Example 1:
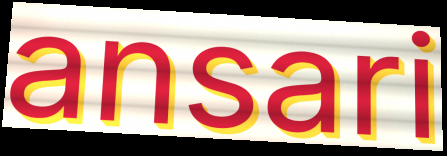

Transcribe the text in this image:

ansari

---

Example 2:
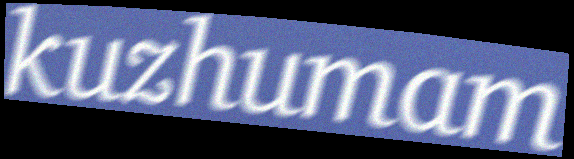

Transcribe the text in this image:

kuzhumam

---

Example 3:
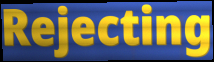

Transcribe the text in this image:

Rejecting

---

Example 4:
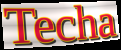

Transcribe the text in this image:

Techa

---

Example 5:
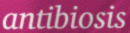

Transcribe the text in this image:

antibiosis